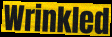
Wrinkled